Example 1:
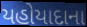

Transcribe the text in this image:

યહોયાદાના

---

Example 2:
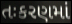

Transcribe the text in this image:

તઃકરણમાં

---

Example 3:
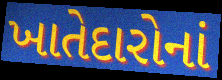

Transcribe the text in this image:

ખાતેદારોનાં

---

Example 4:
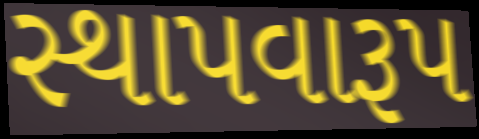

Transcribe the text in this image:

સ્થાપવારૂપ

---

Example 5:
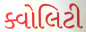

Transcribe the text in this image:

ક્વોલિટી